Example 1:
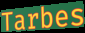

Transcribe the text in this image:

Tarbes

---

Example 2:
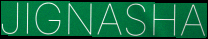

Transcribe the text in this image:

JIGNASHA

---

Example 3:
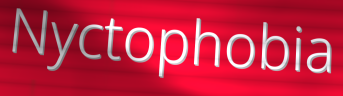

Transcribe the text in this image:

Nyctophobia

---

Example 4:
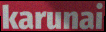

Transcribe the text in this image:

karunai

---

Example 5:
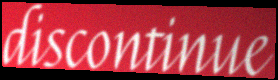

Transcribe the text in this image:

discontinue